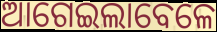
ଆଗେଇଲାବେଳେ